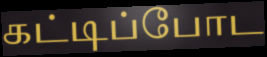
கட்டிப்போட